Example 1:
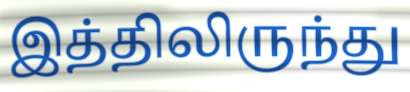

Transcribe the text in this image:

இத்திலிருந்து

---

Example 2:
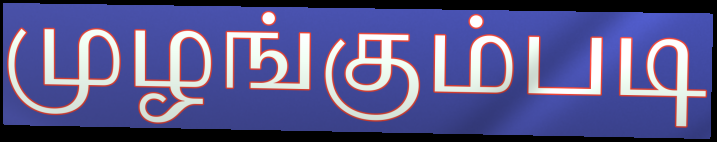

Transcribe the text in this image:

முழங்கும்படி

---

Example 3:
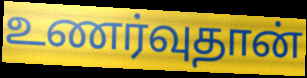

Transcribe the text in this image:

உணர்வுதான்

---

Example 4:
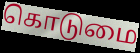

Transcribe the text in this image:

கொடுமை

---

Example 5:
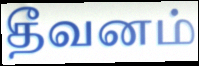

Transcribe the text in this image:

தீவனம்